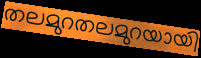
തലമുറതലമുറയായി